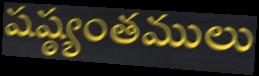
షష్ఠ్యంతములు